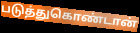
படுத்துகொண்டான்